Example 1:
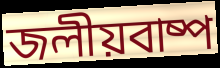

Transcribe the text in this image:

জলীয়বাষ্প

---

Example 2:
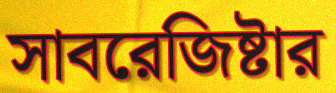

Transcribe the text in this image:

সাবরেজিষ্টার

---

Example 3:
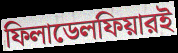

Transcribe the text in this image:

ফিলাডেলফিয়ারই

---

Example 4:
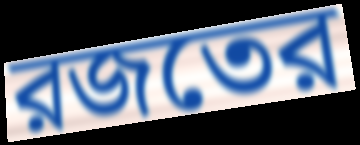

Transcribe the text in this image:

রজতের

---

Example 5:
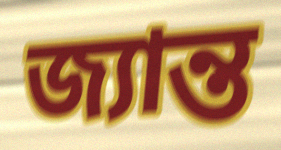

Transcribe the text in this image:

জ্যান্ত